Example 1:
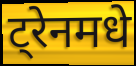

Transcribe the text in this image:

ट्रेनमधे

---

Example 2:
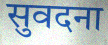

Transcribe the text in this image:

सुवदना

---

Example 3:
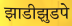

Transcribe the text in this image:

झाडीझुडपे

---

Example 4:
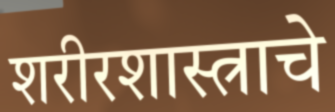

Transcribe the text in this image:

शरीरशास्त्राचे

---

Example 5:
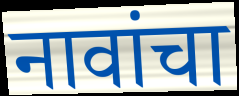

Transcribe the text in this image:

नावांचा